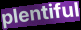
plentiful